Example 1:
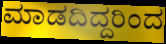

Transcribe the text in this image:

ಮಾಡದಿದ್ದರಿಂದ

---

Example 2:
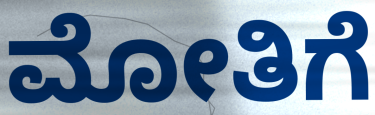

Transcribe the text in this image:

ಮೋತಿಗೆ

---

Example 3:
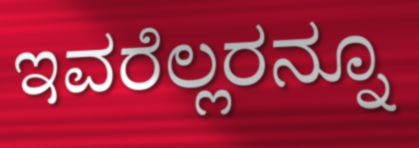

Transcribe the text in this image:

ಇವರೆಲ್ಲರನ್ನೂ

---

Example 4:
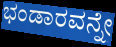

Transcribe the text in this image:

ಭಂಡಾರವನ್ನೇ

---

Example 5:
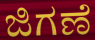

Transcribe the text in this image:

ಜಿಗಣೆ